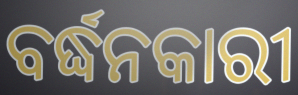
ବର୍ଦ୍ଧନକାରୀ